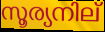
സൂര്യനില്